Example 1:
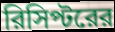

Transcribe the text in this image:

রিসিপ্টরের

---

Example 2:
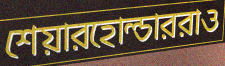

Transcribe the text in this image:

শেয়ারহোল্ডাররাও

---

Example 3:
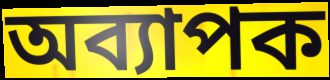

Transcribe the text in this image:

অব্যাপক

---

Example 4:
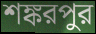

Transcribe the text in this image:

শঙ্করপুর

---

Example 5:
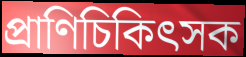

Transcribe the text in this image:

প্রাণিচিকিৎসক